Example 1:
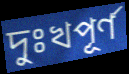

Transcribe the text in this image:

দুঃখপূর্ণ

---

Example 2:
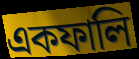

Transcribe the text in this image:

একফালি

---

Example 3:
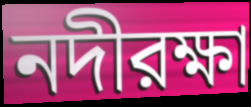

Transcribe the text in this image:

নদীরক্ষা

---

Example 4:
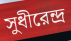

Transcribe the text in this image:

সুধীরেন্দ্র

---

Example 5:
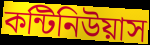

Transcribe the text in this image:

কন্টিনিউয়াস